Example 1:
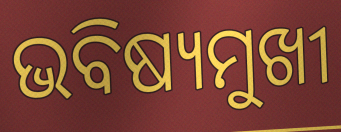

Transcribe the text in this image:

ଭବିଷ୍ୟମୁଖୀ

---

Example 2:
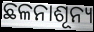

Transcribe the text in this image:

ଛଳନାଶୂନ୍ୟ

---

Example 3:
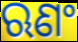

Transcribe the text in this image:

ଋଣଂ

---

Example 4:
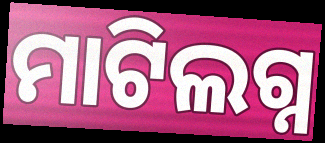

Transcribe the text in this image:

ମାଟିଲଗ୍ନ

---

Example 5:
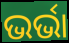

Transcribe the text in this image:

ଭର୍ଭା